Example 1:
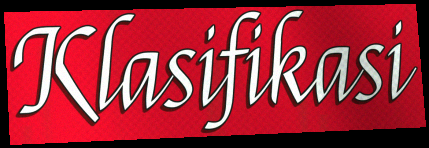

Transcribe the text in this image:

Klasifikasi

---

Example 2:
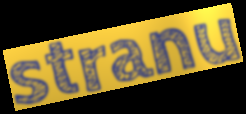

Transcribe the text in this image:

stranu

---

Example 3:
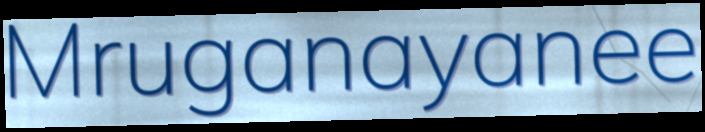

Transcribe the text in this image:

Mruganayanee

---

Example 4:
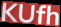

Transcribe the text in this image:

KUfh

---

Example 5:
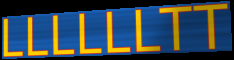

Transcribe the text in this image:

LLLLLLTT